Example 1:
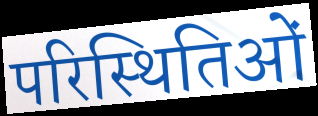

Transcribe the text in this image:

परिस्थितिओं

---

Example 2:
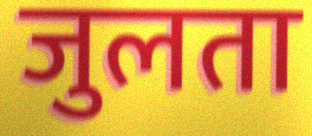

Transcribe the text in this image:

जुलता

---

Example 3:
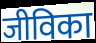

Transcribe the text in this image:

जीविका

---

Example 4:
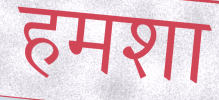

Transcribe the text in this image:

हमशा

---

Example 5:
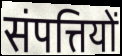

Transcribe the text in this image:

संपत्तियों